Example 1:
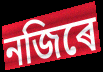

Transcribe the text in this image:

নজিৰে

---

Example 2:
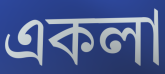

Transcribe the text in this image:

একলা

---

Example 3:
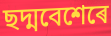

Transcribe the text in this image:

ছদ্মবেশেৰে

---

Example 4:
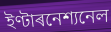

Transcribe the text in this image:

ইণ্টাৰনেশ্যনেল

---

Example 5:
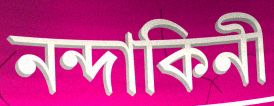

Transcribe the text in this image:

নন্দাকিনী